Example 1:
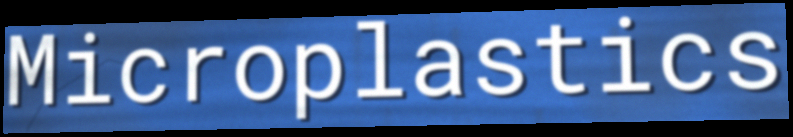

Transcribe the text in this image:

Microplastics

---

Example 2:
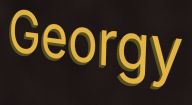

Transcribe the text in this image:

Georgy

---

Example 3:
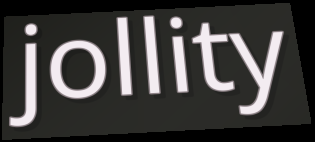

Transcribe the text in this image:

jollity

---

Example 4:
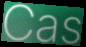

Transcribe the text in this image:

Cas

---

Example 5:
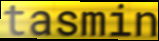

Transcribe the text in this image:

tasmin